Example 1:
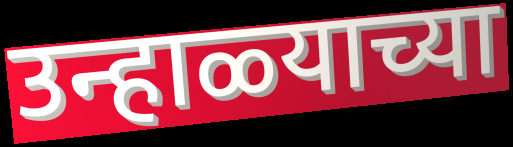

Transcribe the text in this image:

उन्हाळ्याच्या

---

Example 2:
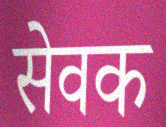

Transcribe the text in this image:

सेवक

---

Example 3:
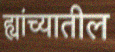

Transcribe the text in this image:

ह्यांच्यातील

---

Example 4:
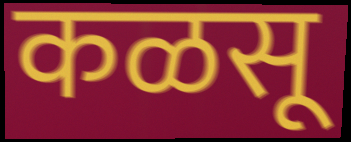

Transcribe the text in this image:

कळसू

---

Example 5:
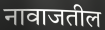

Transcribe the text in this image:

नावाजतील